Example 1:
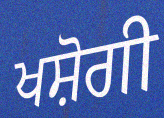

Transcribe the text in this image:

ਖਸ਼ੋਗੀ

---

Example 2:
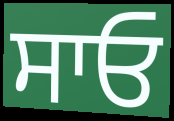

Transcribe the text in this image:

ਸਾਓ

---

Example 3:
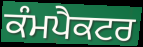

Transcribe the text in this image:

ਕੰਮਪੈਕਟਰ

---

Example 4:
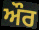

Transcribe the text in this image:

ਔਰ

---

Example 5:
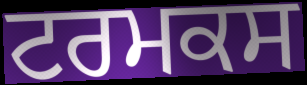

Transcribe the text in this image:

ਟਰਮਕਸ